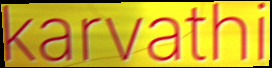
karvathi